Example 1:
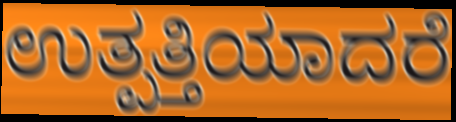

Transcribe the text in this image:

ಉತ್ಪತ್ತಿಯಾದರೆ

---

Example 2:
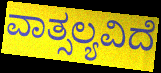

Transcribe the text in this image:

ವಾತ್ಸಲ್ಯವಿದೆ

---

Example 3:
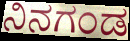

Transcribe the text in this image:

ನಿನಗಂಡ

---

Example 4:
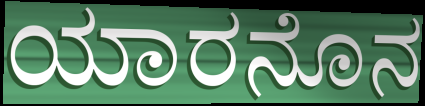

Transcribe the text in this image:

ಯಾರನೊನ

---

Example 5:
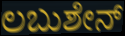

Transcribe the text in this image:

ಲಬುಶೇನ್